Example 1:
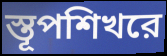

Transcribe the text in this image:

স্তূপশিখরে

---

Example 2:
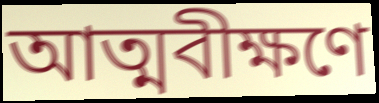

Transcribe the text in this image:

আত্মবীক্ষণে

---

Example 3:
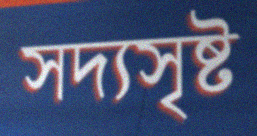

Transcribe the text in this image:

সদ্যসৃষ্ট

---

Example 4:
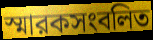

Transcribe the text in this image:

স্মারকসংবলিত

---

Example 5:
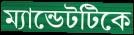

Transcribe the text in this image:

ম্যান্ডেটটিকে